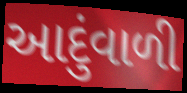
આદુંવાળી